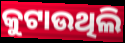
କୁଟାଉଥିଲି